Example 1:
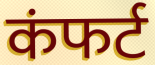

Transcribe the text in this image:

कंफर्ट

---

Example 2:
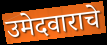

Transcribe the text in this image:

उमेदवाराचे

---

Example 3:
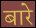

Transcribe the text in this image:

बारे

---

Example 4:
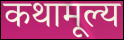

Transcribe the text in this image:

कथामूल्य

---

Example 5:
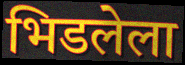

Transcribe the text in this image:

भिडलेला